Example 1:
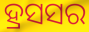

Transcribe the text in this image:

ହ୍ରସସର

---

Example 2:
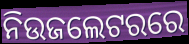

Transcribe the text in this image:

ନିଉଜଲେଟରରେ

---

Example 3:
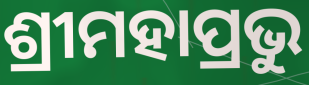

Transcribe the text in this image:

ଶ୍ରୀମହାପ୍ରଭୁ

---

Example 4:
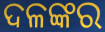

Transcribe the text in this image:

ଦଳଙ୍କର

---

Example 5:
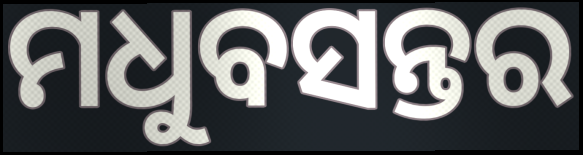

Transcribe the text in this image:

ମଧୁବସନ୍ତର